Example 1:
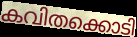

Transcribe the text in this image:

കവിതക്കൊടി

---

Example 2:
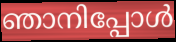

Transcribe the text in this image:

ഞാനിപ്പോൾ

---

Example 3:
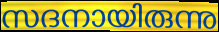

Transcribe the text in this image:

സദനായിരുന്നു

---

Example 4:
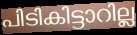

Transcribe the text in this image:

പിടികിട്ടാറില്ല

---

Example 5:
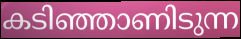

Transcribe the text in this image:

കടിഞ്ഞാണിടുന്ന